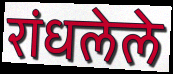
रांधलेले